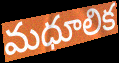
మధూలిక